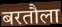
बरतौला